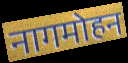
नागमोहन